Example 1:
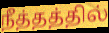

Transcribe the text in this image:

நீத்தத்தில்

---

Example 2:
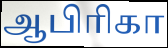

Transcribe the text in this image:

ஆபிரிகா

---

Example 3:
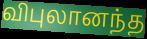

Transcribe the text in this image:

விபுலானந்த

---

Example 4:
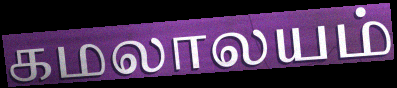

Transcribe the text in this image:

கமலாலயம்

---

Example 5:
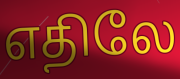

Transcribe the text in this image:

எதிலே